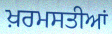
ਖ਼ਰਮਸਤੀਆਂ